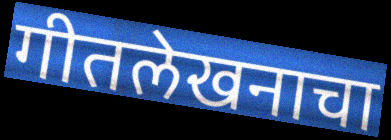
गीतलेखनाचा